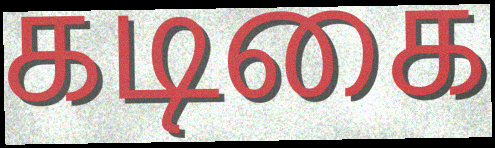
கடிகை